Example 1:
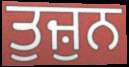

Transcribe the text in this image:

ਤੁਜ਼ੁਨ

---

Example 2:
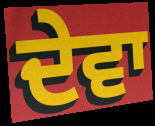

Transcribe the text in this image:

ਦੇਵਾ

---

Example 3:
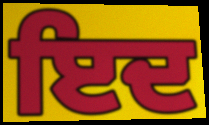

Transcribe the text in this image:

ਇਦ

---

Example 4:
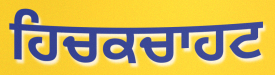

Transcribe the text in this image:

ਹਿਚਕਚਾਹਟ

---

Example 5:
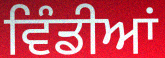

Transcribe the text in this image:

ਵਿੰਡੀਆਂ